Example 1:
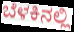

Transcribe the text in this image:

ಬೆಳಕಿನಲ್ಲಿ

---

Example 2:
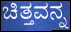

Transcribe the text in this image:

ಚಿತ್ತವನ್ನ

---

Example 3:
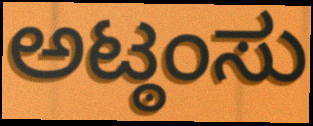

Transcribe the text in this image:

ಅಟ್ಠಂಸು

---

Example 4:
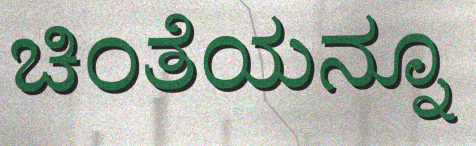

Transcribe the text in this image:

ಚಿಂತೆಯನ್ನೂ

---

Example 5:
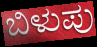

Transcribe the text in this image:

ಬಿಳುಪು